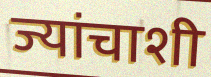
ज्यांचाशी